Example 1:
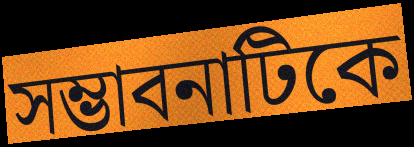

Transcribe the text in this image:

সম্ভাবনাটিকে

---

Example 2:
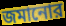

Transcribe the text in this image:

জমানোর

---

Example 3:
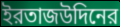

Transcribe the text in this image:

ইরতাজউদিনের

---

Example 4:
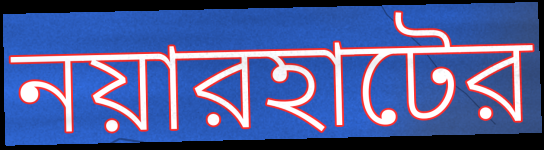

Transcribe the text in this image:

নয়ারহাটের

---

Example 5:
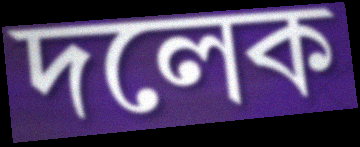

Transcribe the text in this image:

দলেক